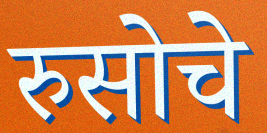
रुसोचे